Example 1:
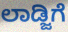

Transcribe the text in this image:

ಲಾಡ್ಜಿಗೆ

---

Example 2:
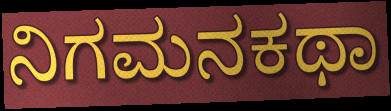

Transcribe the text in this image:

ನಿಗಮನಕಥಾ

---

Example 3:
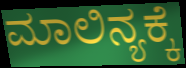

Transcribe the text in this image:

ಮಾಲಿನ್ಯಕ್ಕೆ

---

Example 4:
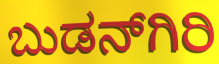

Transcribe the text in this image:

ಬುಡನ್‍ಗಿರಿ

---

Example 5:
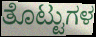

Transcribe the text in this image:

ತೊಟ್ಟುಗಳ